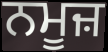
ਨਮੂਜ਼